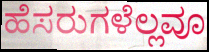
ಹೆಸರುಗಳೆಲ್ಲವೂ